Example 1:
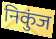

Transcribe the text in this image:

निकुंज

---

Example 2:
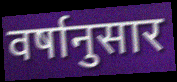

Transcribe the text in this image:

वर्षानुसार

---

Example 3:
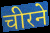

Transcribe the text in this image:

चीरने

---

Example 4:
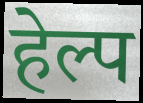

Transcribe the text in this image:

हेल्प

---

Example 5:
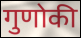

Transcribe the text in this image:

गुणोकी